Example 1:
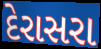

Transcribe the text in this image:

દેરાસરા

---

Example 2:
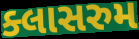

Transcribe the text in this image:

ક્લાસરુમ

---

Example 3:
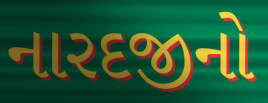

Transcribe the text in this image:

નારદજીનો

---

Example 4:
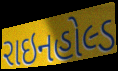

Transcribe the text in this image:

રાઇનહોલ્ડ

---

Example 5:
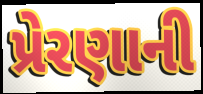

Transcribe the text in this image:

પ્રેરણાની